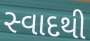
સ્વાદથી